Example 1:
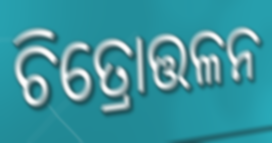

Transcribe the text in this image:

ଚିତ୍ରୋତ୍ତଳନ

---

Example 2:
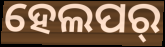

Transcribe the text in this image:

ହେଲପର୍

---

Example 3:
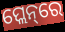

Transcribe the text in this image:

ପ୍ଲେନ୍‌ରେ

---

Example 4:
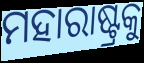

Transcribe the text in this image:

ମହାରାଷ୍ଟ୍ରକୁ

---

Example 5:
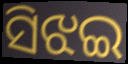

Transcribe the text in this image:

ସିଝଇ